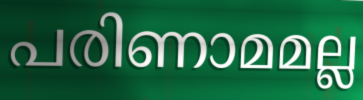
പരിണാമമല്ല